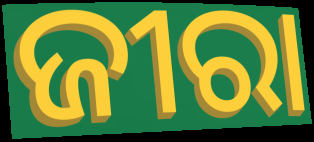
ଜୀରା